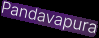
Pandavapura